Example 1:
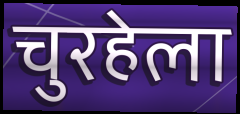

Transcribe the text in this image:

चुरहेला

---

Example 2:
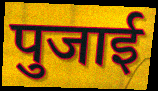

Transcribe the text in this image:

पुजाई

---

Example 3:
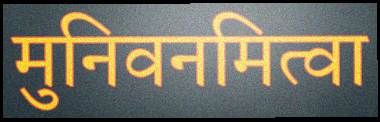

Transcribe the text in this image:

मुनिवनमित्वा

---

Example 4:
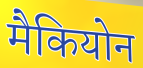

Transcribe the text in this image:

मैकियोन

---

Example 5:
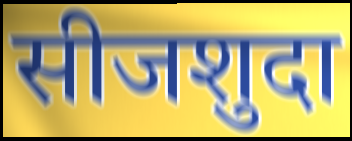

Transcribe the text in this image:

सीजशुदा